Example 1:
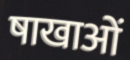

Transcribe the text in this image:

षाखाओं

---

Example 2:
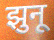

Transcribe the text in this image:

झुनू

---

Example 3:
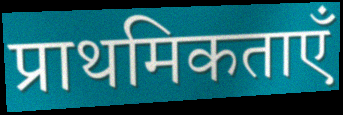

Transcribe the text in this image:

प्राथमिकताएँ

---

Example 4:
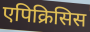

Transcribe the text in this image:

एपिक्रिसिस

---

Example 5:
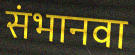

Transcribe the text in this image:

संभानवा